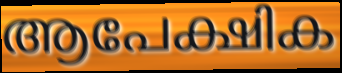
ആപേക്ഷിക